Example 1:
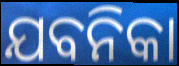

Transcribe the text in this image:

ଯବନିକା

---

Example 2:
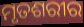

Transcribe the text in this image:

ମୃତଶରୀର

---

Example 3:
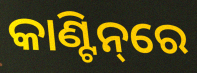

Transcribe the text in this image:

କାଣ୍ଟିନ୍‌ରେ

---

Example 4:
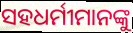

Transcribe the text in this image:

ସହଧର୍ମୀମାନଙ୍କୁ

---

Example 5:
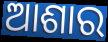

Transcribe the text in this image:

ଆଶାର